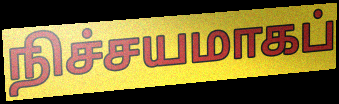
நிச்சயமாகப்